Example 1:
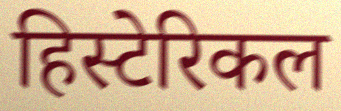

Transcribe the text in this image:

हिस्टेरिकल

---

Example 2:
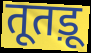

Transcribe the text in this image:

तूतड़ू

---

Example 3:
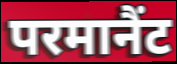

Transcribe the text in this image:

परमानैंट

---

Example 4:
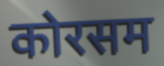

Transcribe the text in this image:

कोरसम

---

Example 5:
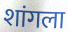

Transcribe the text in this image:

शांगला